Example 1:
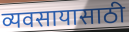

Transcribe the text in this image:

व्यवसायासाठी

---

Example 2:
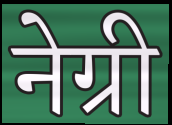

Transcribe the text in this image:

नेग्री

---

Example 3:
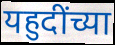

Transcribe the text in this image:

यहुदींच्या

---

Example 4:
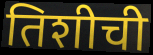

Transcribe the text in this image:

तिशीची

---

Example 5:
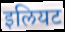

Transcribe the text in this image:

इलियट